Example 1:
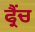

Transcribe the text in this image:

ਫ੍ਰੈਂਚ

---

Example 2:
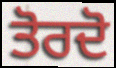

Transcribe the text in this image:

ਤੋਰਦੋ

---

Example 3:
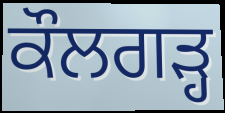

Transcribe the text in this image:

ਕੌਲਗੜ੍ਹ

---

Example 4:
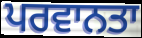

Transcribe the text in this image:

ਪਰਵਾਨਤਾ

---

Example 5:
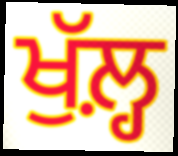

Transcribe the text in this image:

ਖੁੱਲ਼੍ਹ